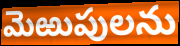
మెఱుపులను